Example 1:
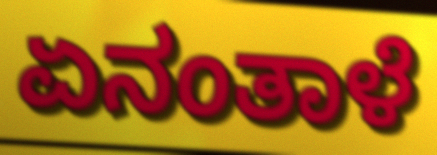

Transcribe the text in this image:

ಏನಂತಾಳೆ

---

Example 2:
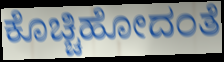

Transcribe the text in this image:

ಕೊಚ್ಚಿಹೋದಂತೆ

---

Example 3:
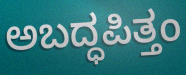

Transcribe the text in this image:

ಅಬದ್ಧಪಿತ್ತಂ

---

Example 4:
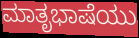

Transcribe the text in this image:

ಮಾತೃಭಾಷೆಯು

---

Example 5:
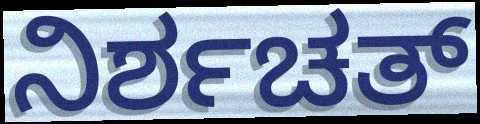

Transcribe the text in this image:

ನಿರ್ಶಚತ್